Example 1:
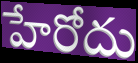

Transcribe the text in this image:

హేరోదు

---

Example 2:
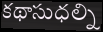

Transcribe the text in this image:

కథాసుధల్ని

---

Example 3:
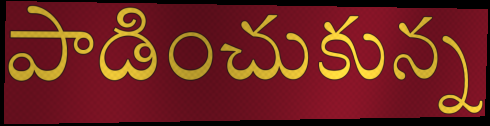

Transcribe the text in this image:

పాడించుకున్న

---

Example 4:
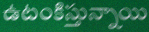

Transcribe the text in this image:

ఉటంకిస్తున్నాయి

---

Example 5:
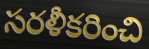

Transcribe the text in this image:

సరళీకరించి